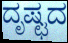
ದೃಷ್ಟದ